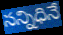
సన్నిధినే